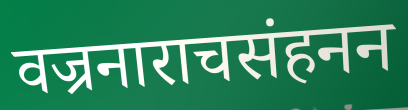
वज्रनाराचसंहनन